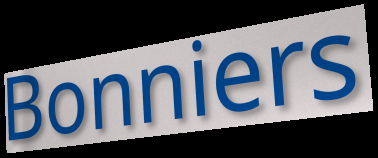
Bonniers